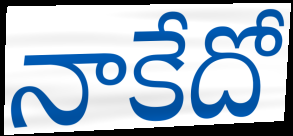
నాకేదో